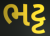
ભટ્ટ